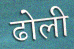
ढोली